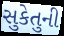
સુકેતુની